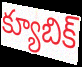
క్యూబిక్